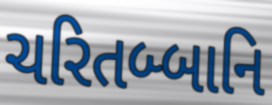
ચરિતબ્બાનિ